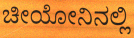
ಚೀಯೋನಿನಲ್ಲಿ